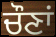
ਚੌਣਾਂ